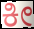
ಕೀ